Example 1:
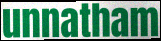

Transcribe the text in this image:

unnatham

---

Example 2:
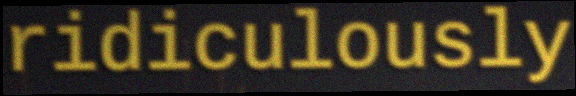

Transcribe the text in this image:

ridiculously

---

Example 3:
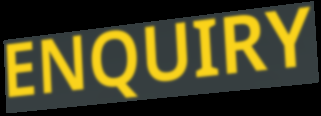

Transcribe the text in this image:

ENQUIRY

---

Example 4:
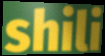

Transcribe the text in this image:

shili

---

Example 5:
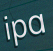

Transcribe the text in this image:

ipa